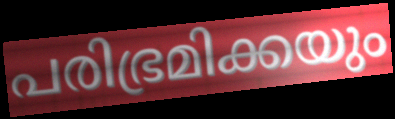
പരിഭ്രമിക്കയും